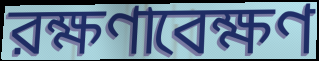
রক্ষণাবেক্ষণ